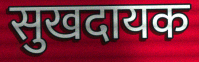
सुखदायक